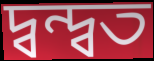
দ্বন্দ্বত